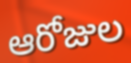
ఆరోజుల